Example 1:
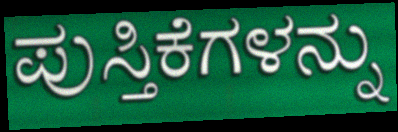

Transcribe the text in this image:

ಪುಸ್ತಿಕೆಗಳನ್ನು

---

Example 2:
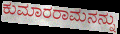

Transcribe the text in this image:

ಕುಮಾರರಾಮನನ್ನು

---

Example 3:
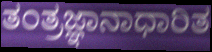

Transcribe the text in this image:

ತಂತ್ರಜ್ಞಾನಾಧಾರಿತ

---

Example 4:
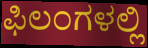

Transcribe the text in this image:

ಫಿಲಂಗಳಲ್ಲಿ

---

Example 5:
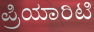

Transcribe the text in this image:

ಪ್ರಿಯಾರಿಟಿ